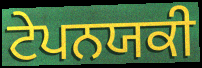
ਟੇਪਨਯਕੀ